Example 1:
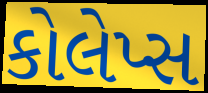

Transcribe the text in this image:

કોલેપ્સ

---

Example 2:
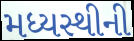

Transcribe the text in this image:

મધ્યસ્થીની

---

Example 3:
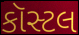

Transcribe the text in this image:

કૉસ્ટલ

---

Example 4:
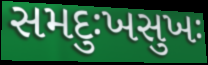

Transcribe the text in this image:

સમદુઃખસુખઃ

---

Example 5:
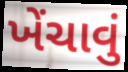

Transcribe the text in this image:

ખેંચાવું